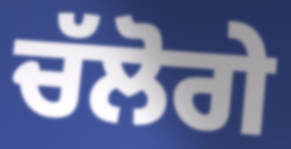
ਚੱਲੋਗੇ